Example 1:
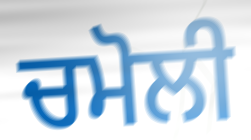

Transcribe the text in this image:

ਚਮੋਲੀ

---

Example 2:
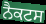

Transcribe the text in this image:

ਨੈਕਟਸ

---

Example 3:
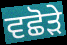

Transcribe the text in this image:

ਵਛੋੜੇ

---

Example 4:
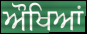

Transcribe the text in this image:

ਔਖਿਆਂ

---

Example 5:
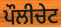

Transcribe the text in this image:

ਪੌਲੀਚੇਟ